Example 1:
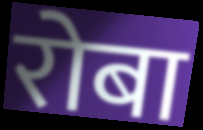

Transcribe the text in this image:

रोबा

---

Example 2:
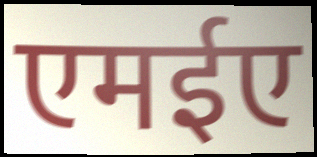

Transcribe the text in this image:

एमईए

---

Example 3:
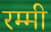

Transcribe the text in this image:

रम्मी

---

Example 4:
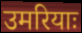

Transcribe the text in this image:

उमरियाः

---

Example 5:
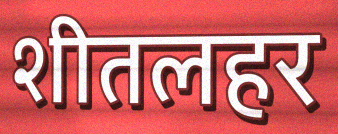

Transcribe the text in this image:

शीतलहर